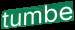
tumbe